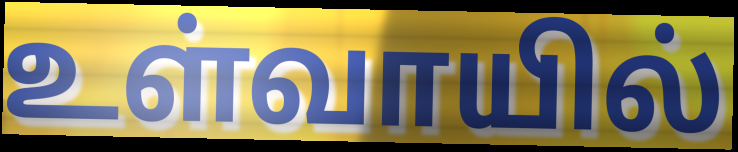
உள்வாயில்